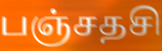
பஞ்சதசி